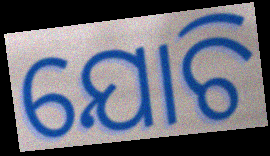
ଯୋଚି